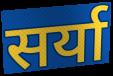
सर्या